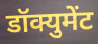
डॉक्युमेंट